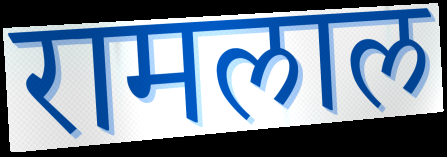
रामलाल